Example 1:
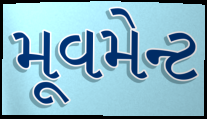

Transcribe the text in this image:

મૂવમેન્ટ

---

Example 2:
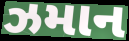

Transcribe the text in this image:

ઝમાન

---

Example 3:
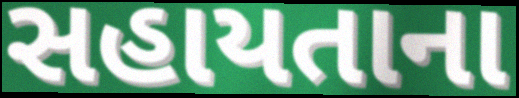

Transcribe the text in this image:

સહાયતાના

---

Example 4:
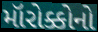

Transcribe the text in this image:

મૉરોક્કોનો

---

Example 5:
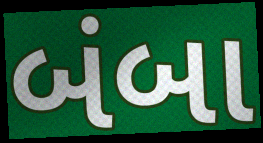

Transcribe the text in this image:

બંબા